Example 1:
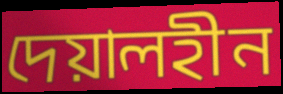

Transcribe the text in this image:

দেয়ালহীন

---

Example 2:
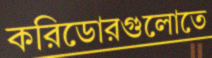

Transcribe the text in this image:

করিডোরগুলোতে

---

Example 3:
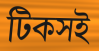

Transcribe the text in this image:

টিকসই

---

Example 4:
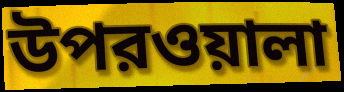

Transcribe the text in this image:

উপরওয়ালা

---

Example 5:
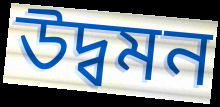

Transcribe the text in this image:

উদ্বমন